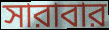
সারাবার